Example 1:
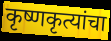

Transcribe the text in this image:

कृष्णकृत्यांचा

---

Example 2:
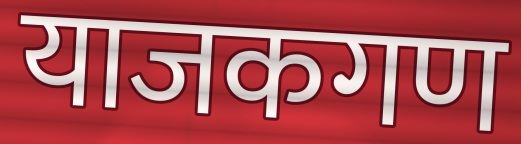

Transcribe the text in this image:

याजकगण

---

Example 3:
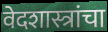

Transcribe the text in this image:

वेदशास्त्रांचा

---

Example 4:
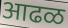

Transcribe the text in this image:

आढळ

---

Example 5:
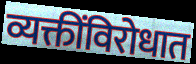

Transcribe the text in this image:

व्यक्तींविरोधात